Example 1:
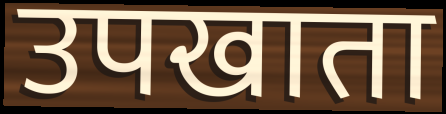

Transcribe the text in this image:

उपखाता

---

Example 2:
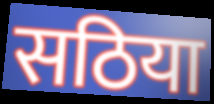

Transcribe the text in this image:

सठिया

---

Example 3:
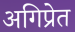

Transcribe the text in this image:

अगिप्रेत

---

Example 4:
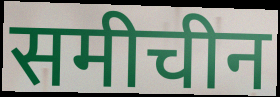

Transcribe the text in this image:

समीचीन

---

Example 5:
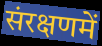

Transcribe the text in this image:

संरक्षणमें